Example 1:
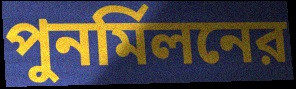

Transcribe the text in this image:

পুনর্মিলনের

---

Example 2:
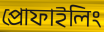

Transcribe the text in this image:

প্রোফাইলিং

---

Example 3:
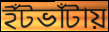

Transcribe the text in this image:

ইঁটভাঁটায়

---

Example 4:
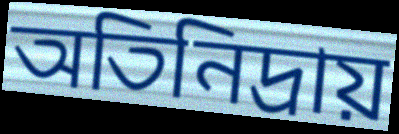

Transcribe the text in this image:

অতিনিদ্রায়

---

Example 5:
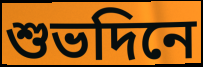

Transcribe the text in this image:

শুভদিনে